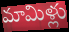
మామిళ్లు